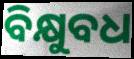
ବିକ୍ଷୁବଧ